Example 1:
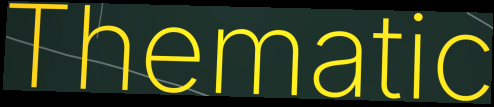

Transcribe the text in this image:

Thematic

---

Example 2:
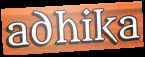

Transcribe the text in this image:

adhika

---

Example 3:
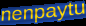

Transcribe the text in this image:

nenpaytu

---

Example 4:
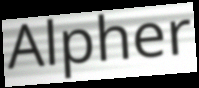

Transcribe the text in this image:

Alpher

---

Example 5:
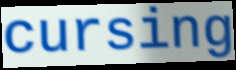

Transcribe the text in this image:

cursing